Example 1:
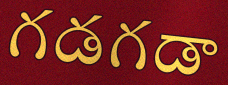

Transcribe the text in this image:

గడగడా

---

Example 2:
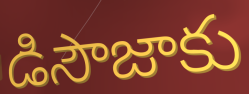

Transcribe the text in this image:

డిసౌజాకు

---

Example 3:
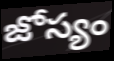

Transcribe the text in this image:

జోస్యం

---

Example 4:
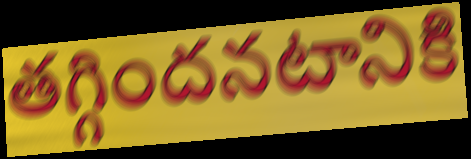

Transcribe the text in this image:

తగ్గిందనటానికి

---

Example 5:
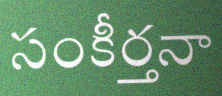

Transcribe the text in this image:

సంకీర్తనా